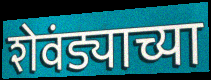
शेवंड्याच्या